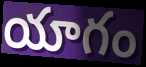
యాగం